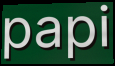
papi